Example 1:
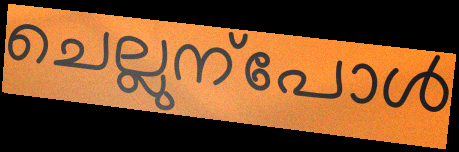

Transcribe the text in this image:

ചെല്ലുന്പോൾ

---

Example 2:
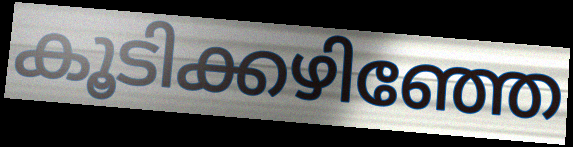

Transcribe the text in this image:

കൂടിക്കഴിഞ്ഞേ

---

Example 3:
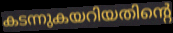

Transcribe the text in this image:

കടന്നുകയറിയതിന്റെ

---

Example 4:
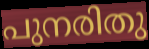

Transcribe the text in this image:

പുനരിതു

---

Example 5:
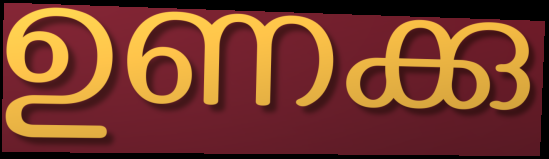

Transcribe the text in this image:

ഉണക്കു